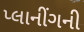
પ્લાનીંગની